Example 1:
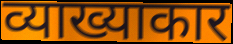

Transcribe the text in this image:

व्याख्याकार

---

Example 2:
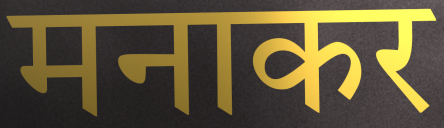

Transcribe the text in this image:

मनाकर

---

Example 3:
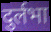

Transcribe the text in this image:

दुर्लभा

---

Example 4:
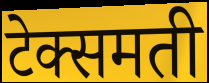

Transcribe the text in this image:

टेक्समती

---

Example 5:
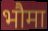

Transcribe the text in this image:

भौमा